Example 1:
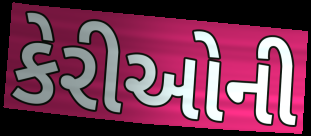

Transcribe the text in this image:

કેરીઓની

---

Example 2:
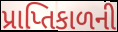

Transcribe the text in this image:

પ્રાપ્તિકાળની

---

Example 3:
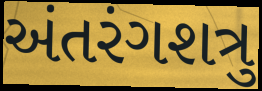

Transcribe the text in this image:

અંતરંગશત્રુ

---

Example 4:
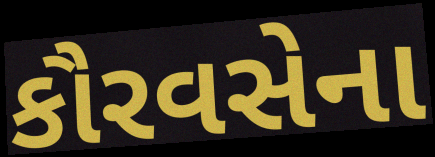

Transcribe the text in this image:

કૌરવસેના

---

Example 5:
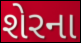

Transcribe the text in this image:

શેરના